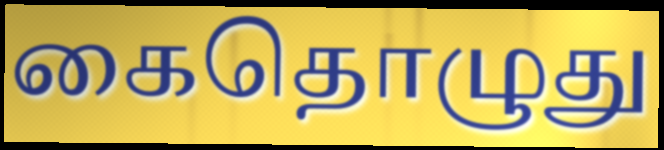
கைதொழுது